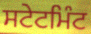
ਸਟੇਟਮਿੰਟ